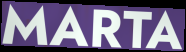
MARTA